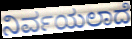
ನಿರ್ವಯಲಾದೆ